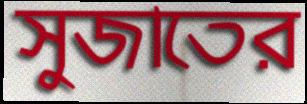
সুজাতের